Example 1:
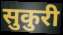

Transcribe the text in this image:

सुकुरी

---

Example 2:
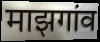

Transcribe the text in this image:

माझगांव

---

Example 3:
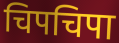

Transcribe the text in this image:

चिपचिपा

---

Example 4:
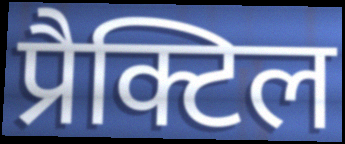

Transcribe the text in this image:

प्रैक्टिल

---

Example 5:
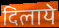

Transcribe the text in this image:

दिलाये